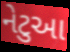
નેટુઆ